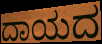
ದಾಯದ